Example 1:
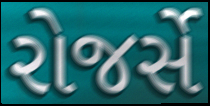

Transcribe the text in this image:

રોજર્સે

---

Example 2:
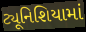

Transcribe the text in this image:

ટ્યૂનિશિયામાં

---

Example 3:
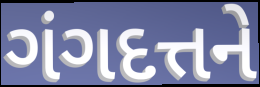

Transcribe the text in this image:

ગંગદત્તને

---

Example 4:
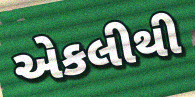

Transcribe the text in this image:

એકલીથી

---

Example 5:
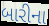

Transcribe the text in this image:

બારીના